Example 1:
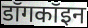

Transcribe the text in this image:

डॉगकॉइन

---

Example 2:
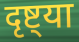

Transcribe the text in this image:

दृष्ट्या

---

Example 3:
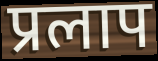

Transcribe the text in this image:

प्रलाप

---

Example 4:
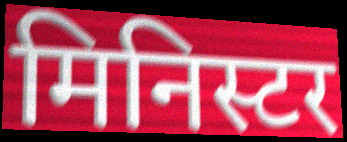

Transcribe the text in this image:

मिनिस्टर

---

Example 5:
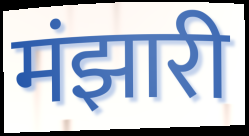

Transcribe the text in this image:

मंझारी